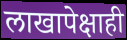
लाखापेक्षाही